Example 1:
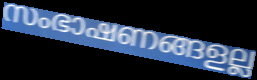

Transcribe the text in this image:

സംഭാഷണങ്ങളല്ല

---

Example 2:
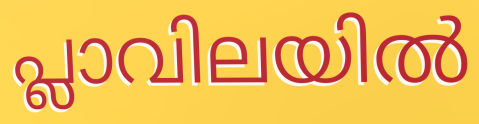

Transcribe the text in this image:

പ്ലാവിലയിൽ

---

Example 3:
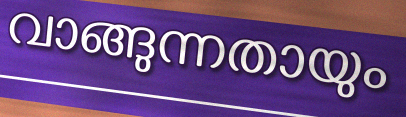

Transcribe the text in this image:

വാങ്ങുന്നതായും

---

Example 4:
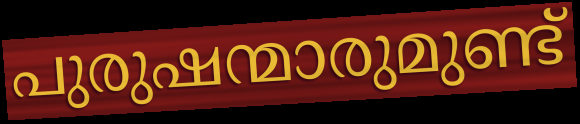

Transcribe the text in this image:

പുരുഷന്മാരുമുണ്ട്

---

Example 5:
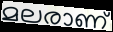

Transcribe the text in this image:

മലരാണ്